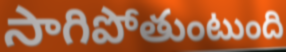
సాగిపోతుంటుంది